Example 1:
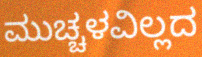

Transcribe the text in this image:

ಮುಚ್ಚಳವಿಲ್ಲದ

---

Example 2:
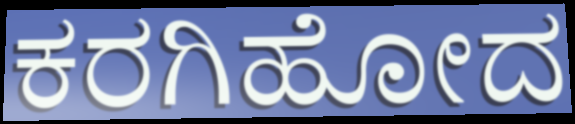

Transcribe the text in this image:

ಕರಗಿಹೋದ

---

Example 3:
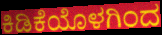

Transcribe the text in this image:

ಕಿಡಿಕೆಯೊಳಗಿಂದ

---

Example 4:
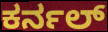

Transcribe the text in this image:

ಕರ್ನಲ್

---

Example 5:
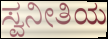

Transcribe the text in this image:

ಸ್ವನೀತಿಯ